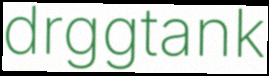
drggtank